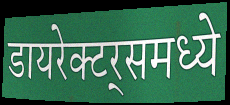
डायरेक्टर्समध्ये